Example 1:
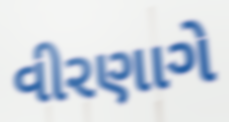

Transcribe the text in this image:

વીરણાગે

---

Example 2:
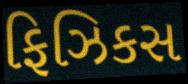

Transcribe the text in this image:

ફિઝિકસ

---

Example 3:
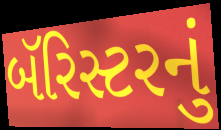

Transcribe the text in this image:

બૅરિસ્ટરનું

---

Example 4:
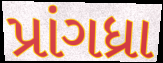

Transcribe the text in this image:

પ્રાંગધ્રા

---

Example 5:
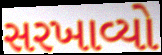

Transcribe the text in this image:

સરખાવ્યો